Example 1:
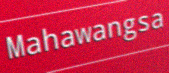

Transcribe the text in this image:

Mahawangsa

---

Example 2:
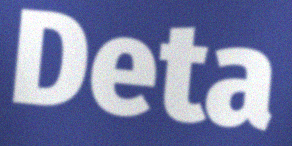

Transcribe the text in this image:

Deta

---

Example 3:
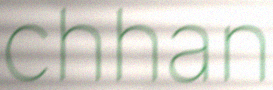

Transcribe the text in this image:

chhan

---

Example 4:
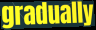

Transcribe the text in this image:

gradually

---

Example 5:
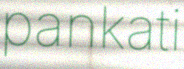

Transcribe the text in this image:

pankati